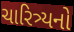
ચારિત્ર્યનો